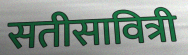
सतीसावित्री